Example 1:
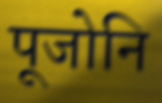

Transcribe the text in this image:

पूजोनि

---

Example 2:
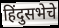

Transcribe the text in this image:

हिंदुसभेचे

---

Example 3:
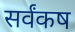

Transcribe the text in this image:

सर्वंकष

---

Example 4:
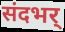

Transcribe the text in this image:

संदभर्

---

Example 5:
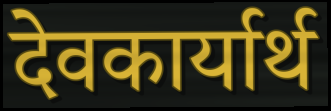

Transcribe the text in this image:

देवकार्यार्थ